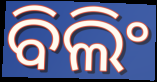
ବିଲିଂ